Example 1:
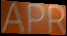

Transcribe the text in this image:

APR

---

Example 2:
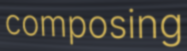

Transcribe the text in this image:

composing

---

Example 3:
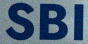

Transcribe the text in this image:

SBI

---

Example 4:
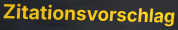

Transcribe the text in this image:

Zitationsvorschlag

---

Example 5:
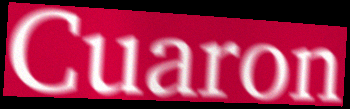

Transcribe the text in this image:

Cuaron